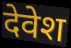
देवेश